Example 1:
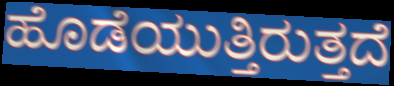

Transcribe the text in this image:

ಹೊಡೆಯುತ್ತಿರುತ್ತದೆ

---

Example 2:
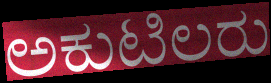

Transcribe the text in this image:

ಅಕುಟಿಲರು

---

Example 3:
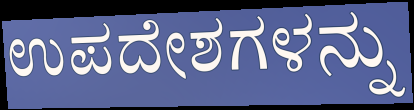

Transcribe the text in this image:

ಉಪದೇಶಗಳನ್ನು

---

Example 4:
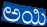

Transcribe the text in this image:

ಅಯಿ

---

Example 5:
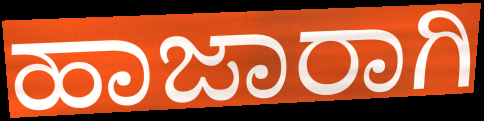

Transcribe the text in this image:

ಹಾಜಾರಾಗಿ